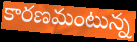
కారణమంటున్న